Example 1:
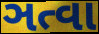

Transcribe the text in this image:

ઞત્વા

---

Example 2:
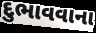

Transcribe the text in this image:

દુભાવવાના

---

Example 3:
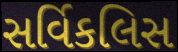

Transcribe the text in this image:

સર્વિકલિસ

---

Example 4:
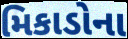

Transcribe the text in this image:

મિકાડોના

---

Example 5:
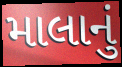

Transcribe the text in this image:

માલાનું